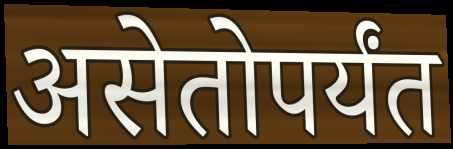
असेतोपर्यंत